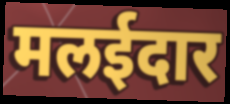
मलईदार